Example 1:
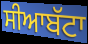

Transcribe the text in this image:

ਸੀਆਬੱਟਾ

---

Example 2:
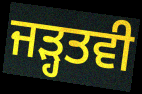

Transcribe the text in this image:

ਜੜ੍ਹਤਵੀ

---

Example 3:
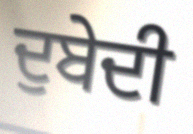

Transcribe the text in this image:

ਦੁਬੇਦੀ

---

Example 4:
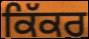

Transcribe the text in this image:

ਕਿੱਕਰ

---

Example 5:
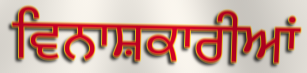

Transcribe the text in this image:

ਵਿਨਾਸ਼ਕਾਰੀਆਂ